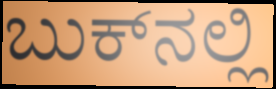
ಬುಕ್‌ನಲ್ಲಿ